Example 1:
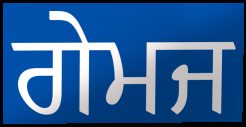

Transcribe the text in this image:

ਗੇਮਜ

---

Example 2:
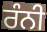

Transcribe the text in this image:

ਰੰਨੀ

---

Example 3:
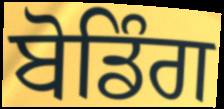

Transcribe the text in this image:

ਬੋਡਿੰਗ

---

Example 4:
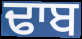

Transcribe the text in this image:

ਢਾਬ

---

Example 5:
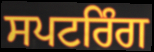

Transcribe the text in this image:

ਸਪਟਰਿੰਗ